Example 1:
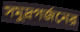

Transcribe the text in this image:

সমুদ্রগর্জনের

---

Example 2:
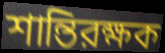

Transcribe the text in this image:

শান্তিরক্ষক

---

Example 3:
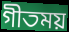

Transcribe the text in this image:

গীতময়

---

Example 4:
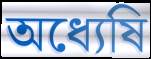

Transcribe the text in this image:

অধ্যেষি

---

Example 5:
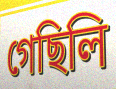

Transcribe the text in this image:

গেছিলি